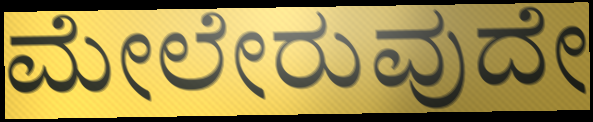
ಮೇಲೇರುವುದೇ